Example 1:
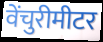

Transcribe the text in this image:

वेंचुरीमीटर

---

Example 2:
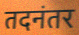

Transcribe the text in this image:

तदनंतर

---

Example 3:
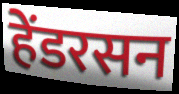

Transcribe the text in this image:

हेंडरसन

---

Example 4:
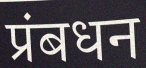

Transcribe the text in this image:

प्रंबधन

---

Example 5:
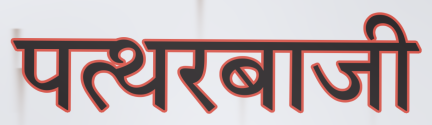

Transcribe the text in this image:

पत्थरबाजी